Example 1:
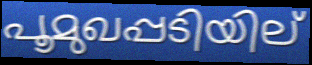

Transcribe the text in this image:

പൂമുഖപ്പടിയില്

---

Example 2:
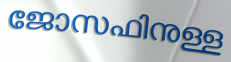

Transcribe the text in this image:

ജോസഫിനുള്ള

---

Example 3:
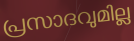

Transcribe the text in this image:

പ്രസാദവുമില്ല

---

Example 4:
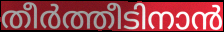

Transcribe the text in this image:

തീർത്തീടിനാൻ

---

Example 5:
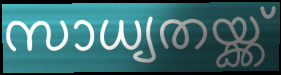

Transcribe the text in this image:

സാധ്യതയ്ക്ക്